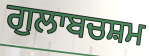
ਗੁਲਾਬਚਸ਼ਮ